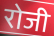
रोजी